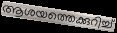
ആശയത്തെക്കുറിച്ച്